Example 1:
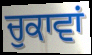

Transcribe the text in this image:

ਚੁਕਾਵਾਂ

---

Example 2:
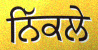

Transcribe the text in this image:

ਨਿੱਕਲੇ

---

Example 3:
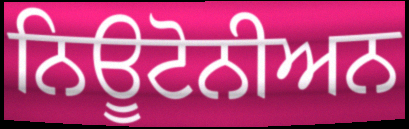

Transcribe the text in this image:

ਨਿਊਟੋਨੀਅਨ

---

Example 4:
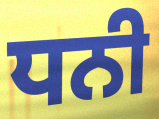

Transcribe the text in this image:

ਧਨੀ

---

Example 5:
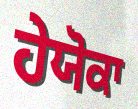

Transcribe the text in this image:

ਹੇਯੋਕਾ